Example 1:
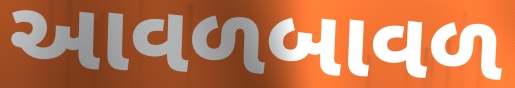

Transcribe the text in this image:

આવળબાવળ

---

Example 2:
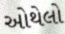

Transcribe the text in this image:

ઓથેલો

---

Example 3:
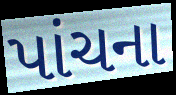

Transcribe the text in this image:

પાંચના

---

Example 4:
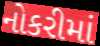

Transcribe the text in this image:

નોકરીમાં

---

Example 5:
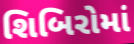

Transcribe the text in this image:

શિબિરોમાં